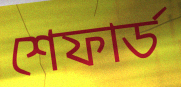
শেফার্ড